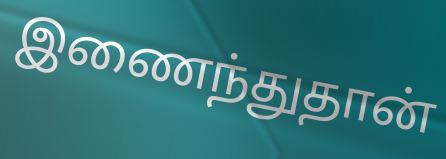
இணைந்துதான்